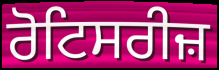
ਰੋਟਿਸਰੀਜ਼